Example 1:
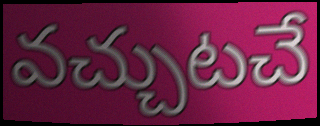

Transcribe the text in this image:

వచ్చుటచే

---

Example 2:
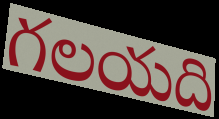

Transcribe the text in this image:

గలయది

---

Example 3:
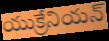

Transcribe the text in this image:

యుక్రేనియన్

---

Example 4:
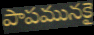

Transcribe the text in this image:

పాపమునకై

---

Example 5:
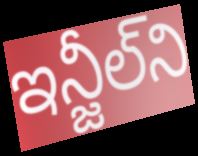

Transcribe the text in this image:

ఇన్జీల్‌ని